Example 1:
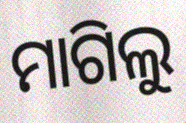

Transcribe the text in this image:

ମାଗିଲୁ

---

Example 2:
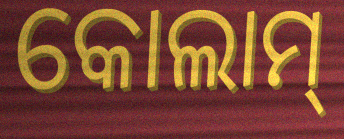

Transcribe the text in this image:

କୋଲାମ୍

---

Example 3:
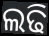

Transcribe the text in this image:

ଲଢି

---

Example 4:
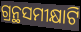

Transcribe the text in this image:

ଗ୍ରନ୍ଥସମୀକ୍ଷାଟି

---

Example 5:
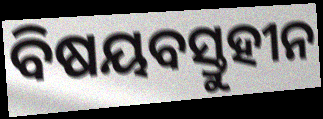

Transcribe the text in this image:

ବିଷୟବସ୍ତୁହୀନ